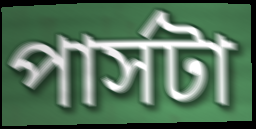
পার্সটা